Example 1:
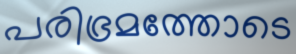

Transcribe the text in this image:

പരിഭ്രമത്തോടെ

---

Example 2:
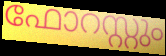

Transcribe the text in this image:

ഫോറസ്റ്റും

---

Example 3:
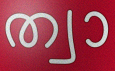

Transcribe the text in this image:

ത്വാ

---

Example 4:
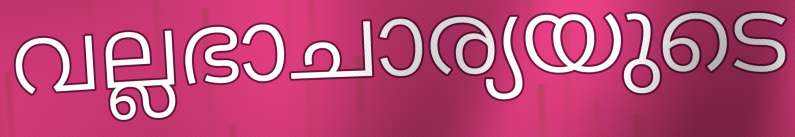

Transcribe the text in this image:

വല്ലഭാചാര്യയുടെ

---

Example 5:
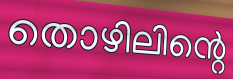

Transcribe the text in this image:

തൊഴിലിന്റെ